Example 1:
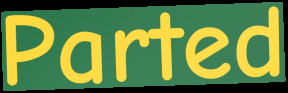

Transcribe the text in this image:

Parted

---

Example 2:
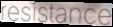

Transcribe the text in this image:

resistance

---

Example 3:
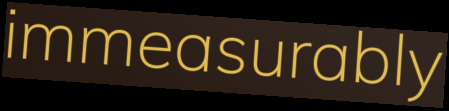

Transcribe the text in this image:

immeasurably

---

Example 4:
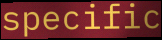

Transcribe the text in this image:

specific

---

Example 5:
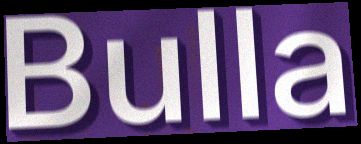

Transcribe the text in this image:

Bulla